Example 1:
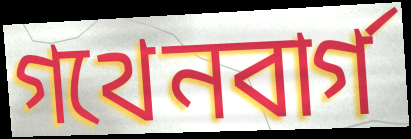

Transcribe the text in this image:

গথেনবার্গ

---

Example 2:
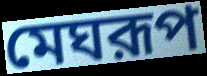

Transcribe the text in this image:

মেঘরূপ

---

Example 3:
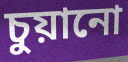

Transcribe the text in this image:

চুয়ানো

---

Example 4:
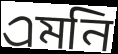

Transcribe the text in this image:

এমনি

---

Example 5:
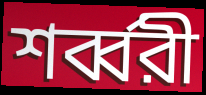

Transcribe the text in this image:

শর্ব্বরী